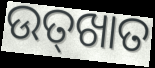
ଉତ୍‌ଖାତ